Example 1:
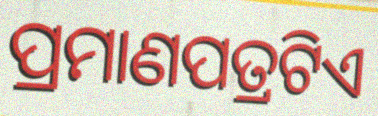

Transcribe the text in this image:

ପ୍ରମାଣପତ୍ରଟିଏ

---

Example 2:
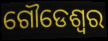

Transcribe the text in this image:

ଗୌଡେଶ୍ୱର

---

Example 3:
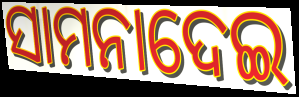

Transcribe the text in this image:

ସାମନାଦେଇ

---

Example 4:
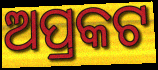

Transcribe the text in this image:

ଅପ୍ରକଟ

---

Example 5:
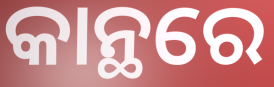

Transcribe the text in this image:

କାନ୍ଥରେ